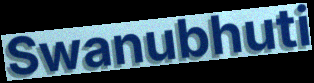
Swanubhuti